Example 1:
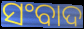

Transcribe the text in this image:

ସଂବାଦ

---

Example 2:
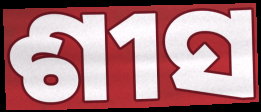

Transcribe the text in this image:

ଶୀସ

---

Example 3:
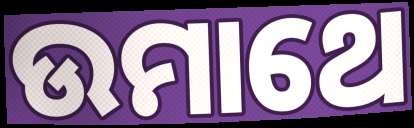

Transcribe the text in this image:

ଉମାଥେ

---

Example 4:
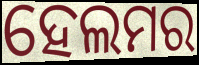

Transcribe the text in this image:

ହେଲମର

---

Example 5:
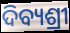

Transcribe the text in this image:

ଦିବ୍ୟଶ୍ରୀ